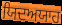
ਯਿਦਅਯਾਹ